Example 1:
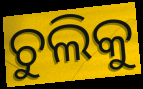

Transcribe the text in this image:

ଚୁଲିକୁ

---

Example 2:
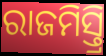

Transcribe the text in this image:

ରାଜମିସ୍ତ୍ରି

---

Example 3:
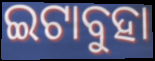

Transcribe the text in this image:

ଇଟାବୁହା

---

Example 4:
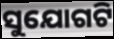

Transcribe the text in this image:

ସୁଯୋଗଟି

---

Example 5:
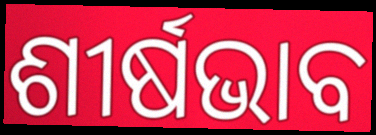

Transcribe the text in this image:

ଶୀର୍ଷଭାବ